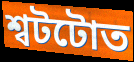
শ্বটটোত